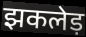
झकलेड़